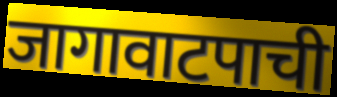
जागावाटपाची